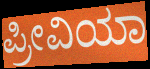
ಪ್ರೀವಿಯಾ